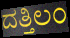
ದತ್ತಿಲಂ